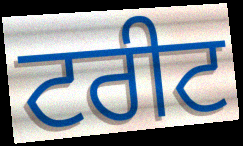
ਟਰੀਟ